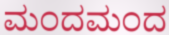
ಮಂದಮಂದ